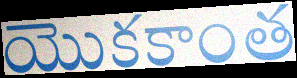
యొకకాంత